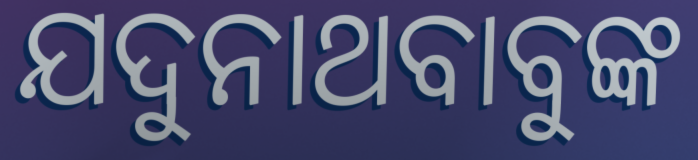
ଯଦୁନାଥବାବୁଙ୍କ